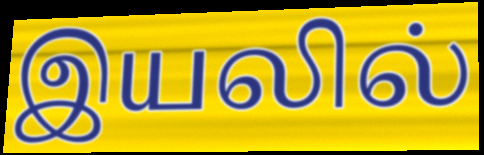
இயலில்